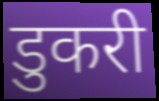
डुकरी